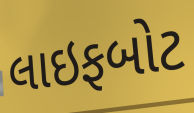
લાઇફબોટ